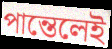
পান্তেলেই